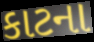
કાટના